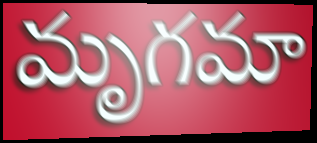
మృగమా